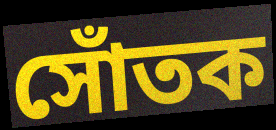
সোঁতক